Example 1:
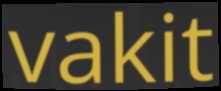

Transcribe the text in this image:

vakit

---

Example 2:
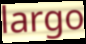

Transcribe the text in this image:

largo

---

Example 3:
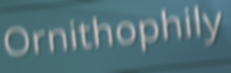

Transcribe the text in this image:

Ornithophily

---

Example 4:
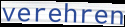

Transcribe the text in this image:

verehren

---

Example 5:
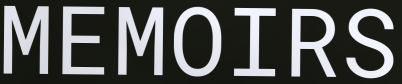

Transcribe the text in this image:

MEMOIRS